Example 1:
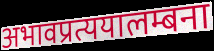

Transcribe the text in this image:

अभावप्रत्ययालम्बना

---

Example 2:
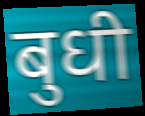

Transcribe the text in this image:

बुधी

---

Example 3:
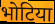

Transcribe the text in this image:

भोटिया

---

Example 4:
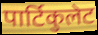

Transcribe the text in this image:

पार्टिकुलेट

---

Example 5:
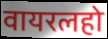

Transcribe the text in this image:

वायरलहो